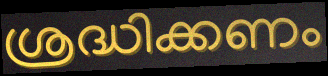
ശ്രദ്ധിക്കണം